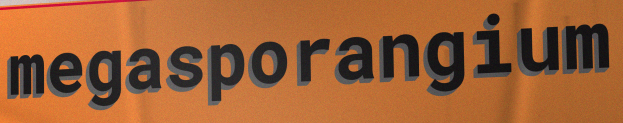
megasporangium